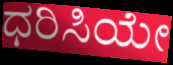
ಧರಿಸಿಯೇ